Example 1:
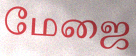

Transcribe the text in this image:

மேஜை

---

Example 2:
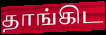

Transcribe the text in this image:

தாங்கிட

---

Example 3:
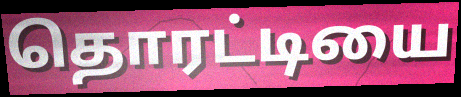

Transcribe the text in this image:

தொரட்டியை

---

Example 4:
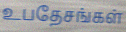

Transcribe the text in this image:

உபதேசங்கள்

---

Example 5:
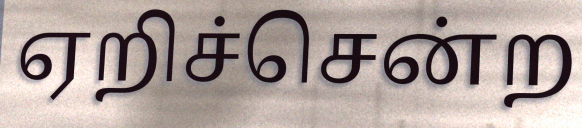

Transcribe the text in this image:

ஏறிச்சென்ற